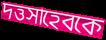
দত্তসাহেবকে